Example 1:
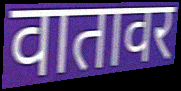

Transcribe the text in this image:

वातावर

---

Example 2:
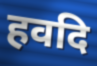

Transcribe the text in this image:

हवदि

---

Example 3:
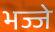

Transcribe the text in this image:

भज्जे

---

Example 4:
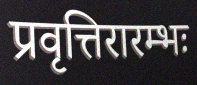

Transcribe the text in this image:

प्रवृत्तिरारम्भः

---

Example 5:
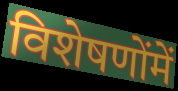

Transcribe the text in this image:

विशेषणोंमें